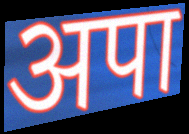
अपा